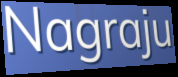
Nagraju